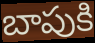
బాపుకి